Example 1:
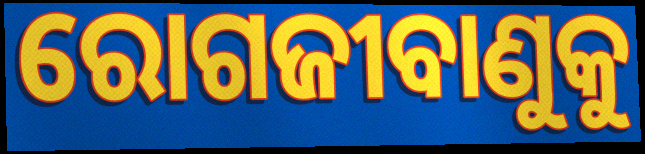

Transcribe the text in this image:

ରୋଗଜୀବାଣୁକୁ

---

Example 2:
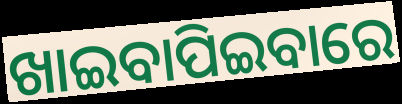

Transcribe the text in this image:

ଖାଇବାପିଇବାରେ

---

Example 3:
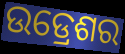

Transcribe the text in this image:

ଉଡ୍ରେଶର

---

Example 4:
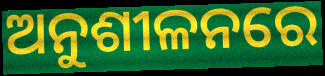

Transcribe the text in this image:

ଅନୁଶୀଳନରେ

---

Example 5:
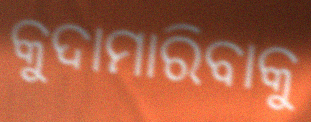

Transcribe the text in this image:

କୁଦାମାରିବାକୁ